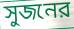
সুজনের